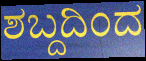
ಶಬ್ದದಿಂದ